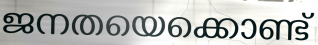
ജനതയെക്കൊണ്ട്